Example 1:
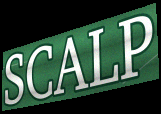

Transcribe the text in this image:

SCALP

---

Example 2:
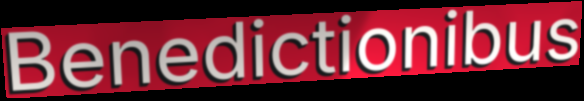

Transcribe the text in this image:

Benedictionibus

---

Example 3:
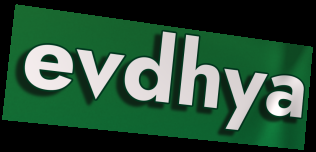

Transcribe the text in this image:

evdhya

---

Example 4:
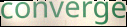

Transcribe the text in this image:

converge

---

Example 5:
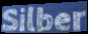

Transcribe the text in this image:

Silber